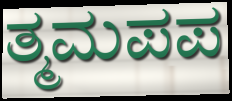
ತ್ಮಮಪಪ